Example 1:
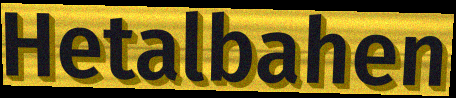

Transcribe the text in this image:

Hetalbahen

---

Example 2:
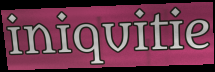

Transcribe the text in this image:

iniquitie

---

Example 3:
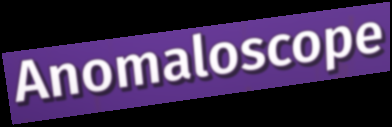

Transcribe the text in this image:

Anomaloscope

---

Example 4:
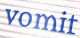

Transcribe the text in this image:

vomit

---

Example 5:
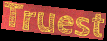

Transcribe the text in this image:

Truest